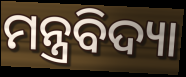
ମନ୍ତ୍ରବିଦ୍ୟା